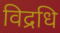
विद्रधि